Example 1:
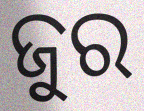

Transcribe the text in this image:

ଜୁର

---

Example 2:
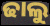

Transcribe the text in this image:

ଢାଲୁ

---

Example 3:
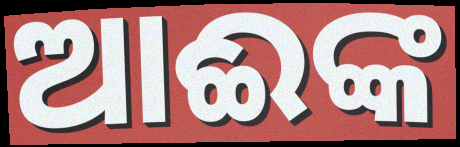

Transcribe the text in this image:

ଆଈଙ୍କ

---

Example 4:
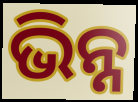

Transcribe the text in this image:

ଭିନ୍ନ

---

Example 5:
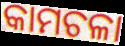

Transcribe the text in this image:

କାମଚଳା